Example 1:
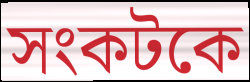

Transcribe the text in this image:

সংকটকে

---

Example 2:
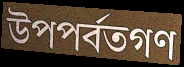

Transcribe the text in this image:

উপপর্বতগণ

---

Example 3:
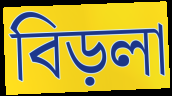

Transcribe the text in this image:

বিড়লা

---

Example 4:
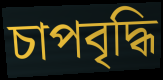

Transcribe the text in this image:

চাপবৃদ্ধি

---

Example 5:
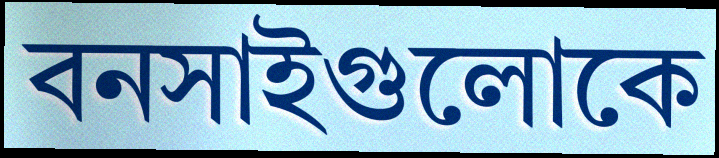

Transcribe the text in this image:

বনসাইগুলোকে